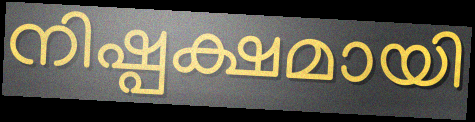
നിഷ്പക്ഷമായി